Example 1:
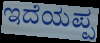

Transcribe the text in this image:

ಇದೆಯಪ್ಪ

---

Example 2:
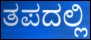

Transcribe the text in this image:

ತಪದಲ್ಲಿ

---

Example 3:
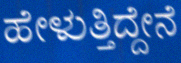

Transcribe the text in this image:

ಹೇಳುತ್ತಿದ್ದೇನೆ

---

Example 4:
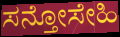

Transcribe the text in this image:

ಸನ್ತೋಸೇಹಿ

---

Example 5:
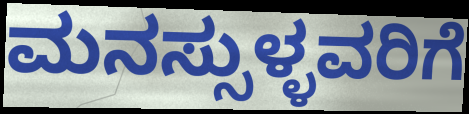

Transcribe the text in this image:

ಮನಸ್ಸುಳ್ಳವರಿಗೆ